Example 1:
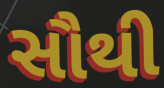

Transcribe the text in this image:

સૌથી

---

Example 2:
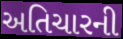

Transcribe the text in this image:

અતિચારની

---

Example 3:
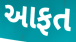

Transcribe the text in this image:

આફત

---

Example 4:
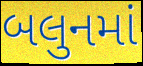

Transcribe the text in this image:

બલુનમાં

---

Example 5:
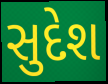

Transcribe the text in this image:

સુદેશ